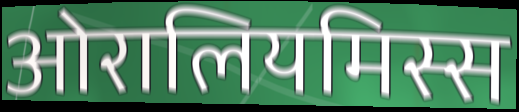
ओरालियमिस्स